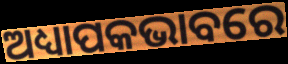
ଅଧ୍ୟାପକଭାବରେ